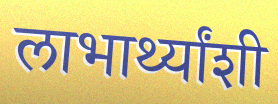
लाभार्थ्यांशी